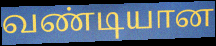
வண்டியான